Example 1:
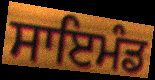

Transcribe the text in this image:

ਸਾਇਮੰਡ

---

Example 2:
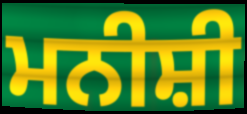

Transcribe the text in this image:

ਮਨੀਸ਼ੀ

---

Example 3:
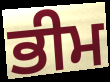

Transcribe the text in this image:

ਭੀਮ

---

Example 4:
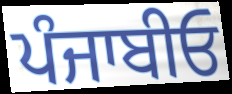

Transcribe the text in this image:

ਪੰਜਾਬੀਓ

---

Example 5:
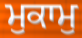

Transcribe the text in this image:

ਮੁਕਾਮੁ